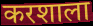
करशाला